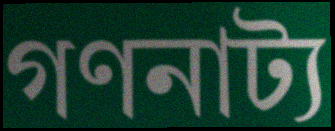
গণনাট্য